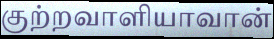
குற்றவாளியாவான்